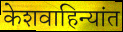
केशवाहिन्यांत